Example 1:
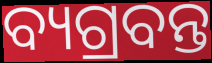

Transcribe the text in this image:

ବ୍ୟଗ୍ରବନ୍ତ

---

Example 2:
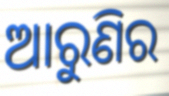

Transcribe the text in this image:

ଆରୁଣିର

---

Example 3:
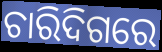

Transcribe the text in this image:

ଚାରିଦିଗରେ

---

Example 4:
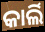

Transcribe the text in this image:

କାର୍ଲି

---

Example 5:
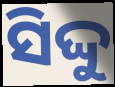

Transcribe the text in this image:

ସିଦ୍ଦୁ